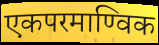
एकपरमाण्विक